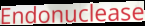
Endonuclease